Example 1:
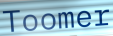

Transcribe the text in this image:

Toomer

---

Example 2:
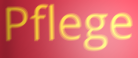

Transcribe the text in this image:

Pflege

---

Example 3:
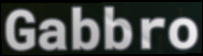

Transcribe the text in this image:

Gabbro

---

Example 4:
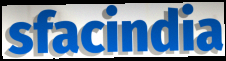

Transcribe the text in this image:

sfacindia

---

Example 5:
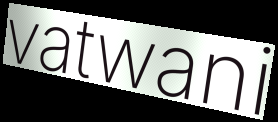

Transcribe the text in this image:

vatwani